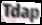
Tdap